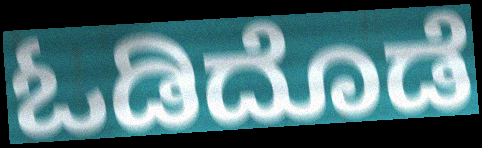
ಓಡಿದೊಡೆ